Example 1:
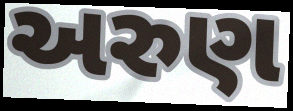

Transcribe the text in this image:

અરુણ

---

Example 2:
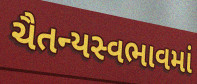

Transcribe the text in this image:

ચૈતન્યસ્વભાવમાં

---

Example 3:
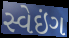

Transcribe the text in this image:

સ્વેઇંગ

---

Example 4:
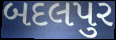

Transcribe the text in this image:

બદલપુર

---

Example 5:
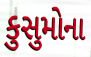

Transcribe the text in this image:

કુસુમોના